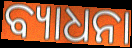
ବ୍ୟାଧନା